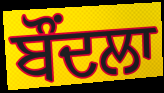
ਬੌਂਦਲਾ